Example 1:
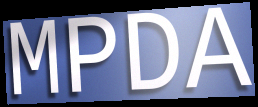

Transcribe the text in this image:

MPDA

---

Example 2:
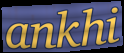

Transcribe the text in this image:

ankhi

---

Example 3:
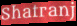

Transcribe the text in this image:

Shatranj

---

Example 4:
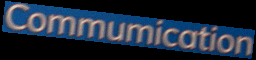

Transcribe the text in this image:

Commumication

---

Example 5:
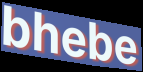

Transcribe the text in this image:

bhebe